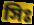
সিঃ